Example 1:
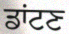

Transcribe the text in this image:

ਡਾਂਟਣ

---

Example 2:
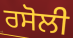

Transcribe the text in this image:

ਰਸੋਲੀ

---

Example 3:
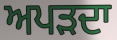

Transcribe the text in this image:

ਅਪੜਦਾ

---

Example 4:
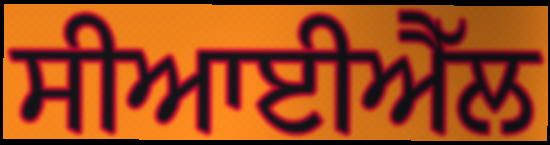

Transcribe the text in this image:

ਸੀਆਈਐੱਲ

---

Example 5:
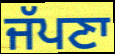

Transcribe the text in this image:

ਜੱਪਣਾ